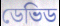
ডেভিড